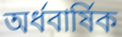
অর্ধবার্ষিক